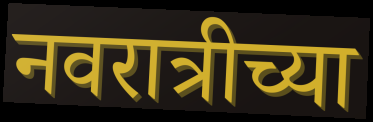
नवरात्रीच्या